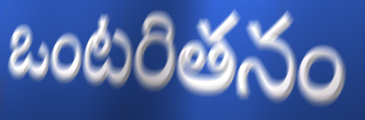
ఒంటరితనం